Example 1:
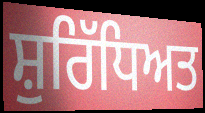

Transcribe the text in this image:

ਸ਼ੁਰਿੱਧਿਅਤ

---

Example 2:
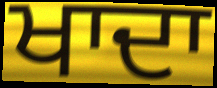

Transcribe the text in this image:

ਖਾਦਾ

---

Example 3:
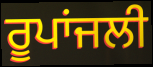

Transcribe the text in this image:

ਰੂਪਾਂਜਲੀ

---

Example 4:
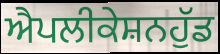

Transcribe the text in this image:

ਐਪਲੀਕੇਸ਼ਨਹੁੱਡ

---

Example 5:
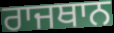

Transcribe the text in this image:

ਰਾਜਥਾਨ